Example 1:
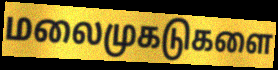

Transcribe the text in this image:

மலைமுகடுகளை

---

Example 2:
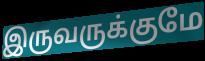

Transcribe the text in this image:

இருவருக்குமே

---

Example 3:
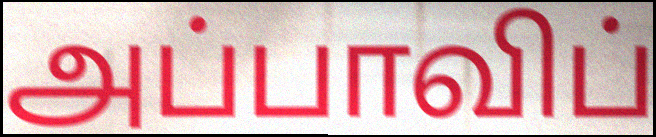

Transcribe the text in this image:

அப்பாவிப்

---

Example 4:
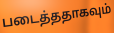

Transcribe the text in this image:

படைத்ததாகவும்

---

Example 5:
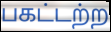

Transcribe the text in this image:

பகட்டற்ற